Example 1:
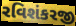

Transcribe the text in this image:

રવિશંકરજી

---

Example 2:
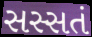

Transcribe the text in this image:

સસ્સતં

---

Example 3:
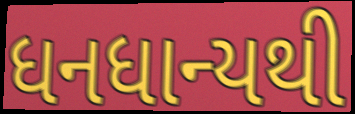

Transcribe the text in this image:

ધનધાન્યથી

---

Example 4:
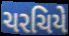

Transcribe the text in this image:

ચરચિયે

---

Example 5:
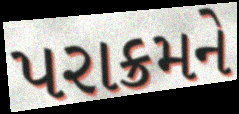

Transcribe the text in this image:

પરાક્રમને